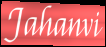
Jahanvi